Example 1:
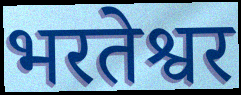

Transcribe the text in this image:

भरतेश्वर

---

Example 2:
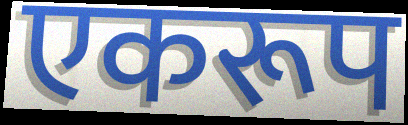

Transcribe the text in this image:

एकरूप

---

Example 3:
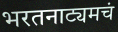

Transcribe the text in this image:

भरतनाट्यमचं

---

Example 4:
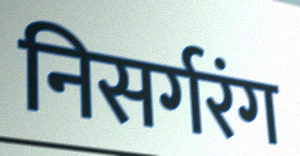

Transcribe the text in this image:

निसर्गरंग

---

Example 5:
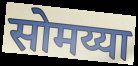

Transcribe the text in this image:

सोमय्या